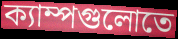
ক্যাম্পগুলোতে